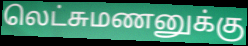
லெட்சுமணனுக்கு